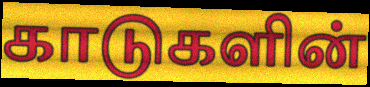
காடுகளின்